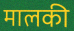
मालकी